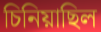
চিনিয়াছিল